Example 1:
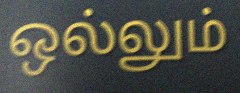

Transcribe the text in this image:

ஒல்லும்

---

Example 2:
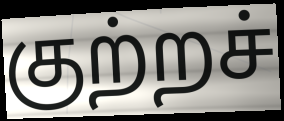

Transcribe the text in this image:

குற்றச்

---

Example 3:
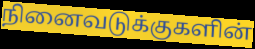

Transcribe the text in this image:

நினைவடுக்குகளின்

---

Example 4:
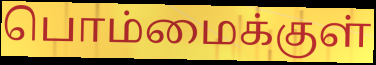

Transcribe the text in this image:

பொம்மைக்குள்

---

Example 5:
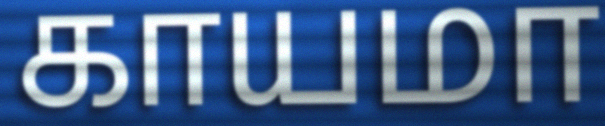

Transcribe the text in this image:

காயமா